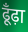
ढूँढ़ा